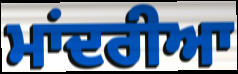
ਮਾਂਦਰੀਆ